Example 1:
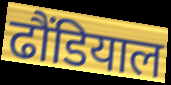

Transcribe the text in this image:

ढौंडियाल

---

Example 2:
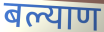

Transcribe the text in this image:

बल्याण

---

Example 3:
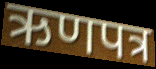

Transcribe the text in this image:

ऋणपत्र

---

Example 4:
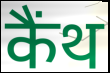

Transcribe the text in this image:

कैंथ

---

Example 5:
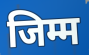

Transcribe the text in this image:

जिम्म